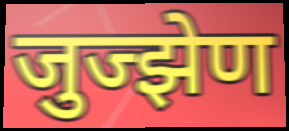
जुज्झेण